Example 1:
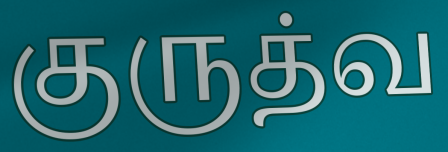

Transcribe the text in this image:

குருத்வ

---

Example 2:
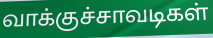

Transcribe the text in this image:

வாக்குச்சாவடிகள்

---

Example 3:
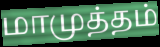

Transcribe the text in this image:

மாமுத்தம்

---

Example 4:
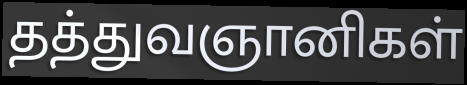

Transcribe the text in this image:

தத்துவஞானிகள்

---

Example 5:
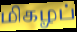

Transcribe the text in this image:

மிகழப்